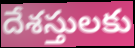
దేశస్తులకు